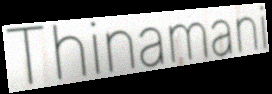
Thinamani